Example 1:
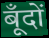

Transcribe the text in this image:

बूँदों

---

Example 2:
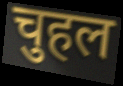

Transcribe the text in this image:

चुहल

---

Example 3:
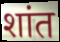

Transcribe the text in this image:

शांत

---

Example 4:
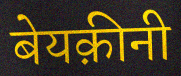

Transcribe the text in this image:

बेयक़ीनी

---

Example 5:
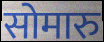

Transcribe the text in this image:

सोमारु